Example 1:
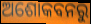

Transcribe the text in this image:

ଅଶୋକବନରୁ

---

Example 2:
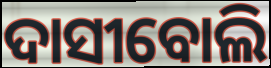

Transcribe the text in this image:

ଦାସୀବୋଲି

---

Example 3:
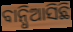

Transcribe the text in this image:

ବାନ୍ଧିଆସିଛି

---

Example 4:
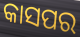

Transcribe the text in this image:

କାସପର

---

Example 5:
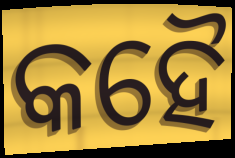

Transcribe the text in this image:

କହୈ